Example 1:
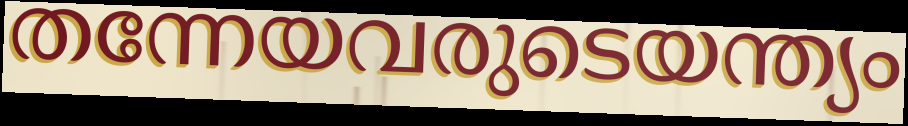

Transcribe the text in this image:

തന്നേയവരുടെയന്ത്യം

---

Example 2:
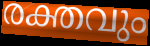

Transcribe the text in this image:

രക്തവും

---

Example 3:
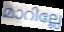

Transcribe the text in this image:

മാറില്ലേ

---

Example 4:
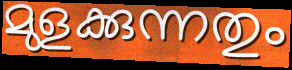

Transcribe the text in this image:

മുളക്കുന്നതും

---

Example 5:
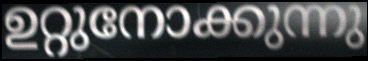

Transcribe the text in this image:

ഉറ്റുനോക്കുന്നു